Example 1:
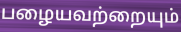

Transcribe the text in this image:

பழையவற்றையும்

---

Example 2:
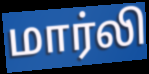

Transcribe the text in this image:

மார்லி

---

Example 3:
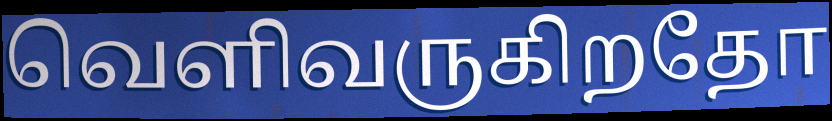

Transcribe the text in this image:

வெளிவருகிறதோ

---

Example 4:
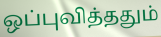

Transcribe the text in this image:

ஒப்புவித்ததும்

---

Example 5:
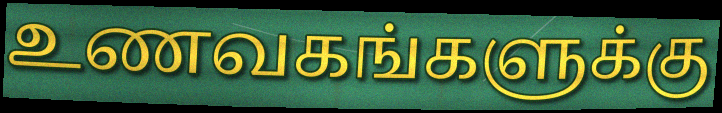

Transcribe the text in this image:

உணவகங்களுக்கு